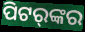
ପିଟର୍‌ଙ୍କର